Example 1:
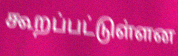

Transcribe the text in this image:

கூறப்பட்டுள்ளன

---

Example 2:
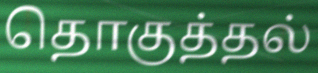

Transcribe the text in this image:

தொகுத்தல்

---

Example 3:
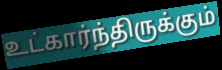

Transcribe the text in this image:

உட்கார்ந்திருக்கும்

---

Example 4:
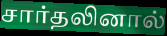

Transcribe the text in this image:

சார்தலினால்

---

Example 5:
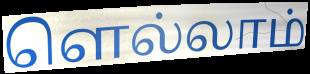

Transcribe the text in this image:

ளெல்லாம்